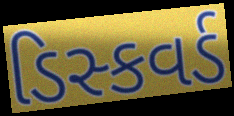
ડિસ્કવર્ડ